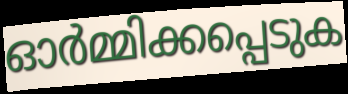
ഓർമ്മിക്കപ്പെടുക